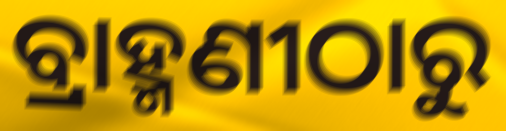
ବ୍ରାହ୍ମଣୀଠାରୁ